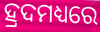
ହ୍ରଦମଧ୍ୟରେ